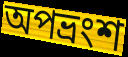
অপভ্ৰংশ